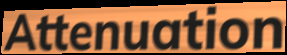
Attenuation